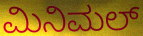
ಮಿನಿಮಲ್